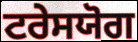
ਟਰੇਸਯੋਗ